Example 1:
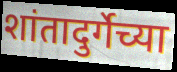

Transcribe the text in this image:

शांतादुर्गेच्या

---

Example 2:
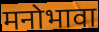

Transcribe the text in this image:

मनोभावा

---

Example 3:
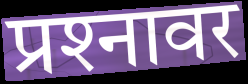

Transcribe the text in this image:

प्रश्‍नावर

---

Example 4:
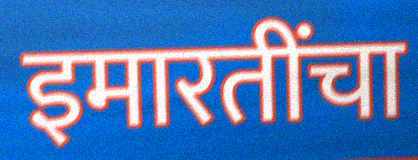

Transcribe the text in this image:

इमारतींचा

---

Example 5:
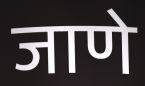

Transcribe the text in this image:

जाणे